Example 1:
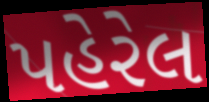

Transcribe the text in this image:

પહેરેલ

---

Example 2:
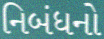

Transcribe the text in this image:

નિબંધનો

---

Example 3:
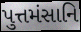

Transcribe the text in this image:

પુત્તમંસાનિ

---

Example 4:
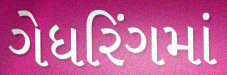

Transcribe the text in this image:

ગેધરિંગમાં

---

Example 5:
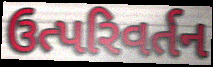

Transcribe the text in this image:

ઉત્પરિવર્તન